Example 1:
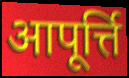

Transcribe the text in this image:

आपूर्त्ति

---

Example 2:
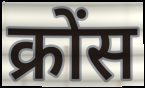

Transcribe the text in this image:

क्रोंस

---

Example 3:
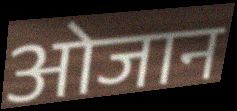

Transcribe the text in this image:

ओजान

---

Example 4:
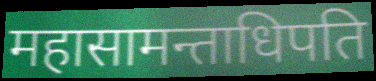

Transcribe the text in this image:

महासामन्ताधिपति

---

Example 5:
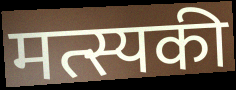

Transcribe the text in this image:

मत्स्यकी